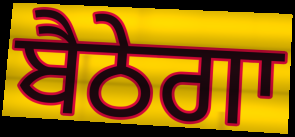
ਬੈਠੇਗਾ